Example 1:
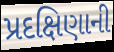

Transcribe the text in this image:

પ્રદક્ષિણાની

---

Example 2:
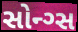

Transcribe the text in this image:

સોન્ગ્સ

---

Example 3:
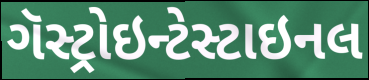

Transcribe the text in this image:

ગૅસ્ટ્રોઇન્ટેસ્ટાઇનલ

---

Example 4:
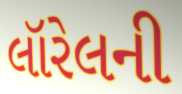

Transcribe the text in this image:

લૉરેલની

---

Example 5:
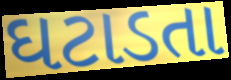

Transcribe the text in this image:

ઘટાડતા